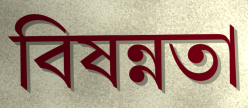
বিষন্নতা